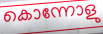
കൊന്നോളു